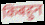
किंबहुन